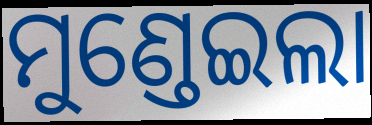
ମୁଣ୍ଡେଇଲା